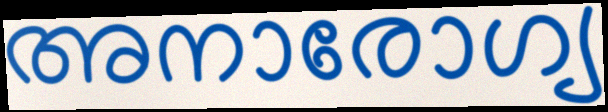
അനാരോഗ്യ